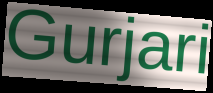
Gurjari